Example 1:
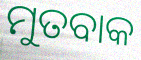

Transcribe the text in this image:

ମୁତବାକ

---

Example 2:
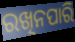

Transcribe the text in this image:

ରଖିନପାରି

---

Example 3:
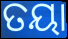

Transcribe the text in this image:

ତୟା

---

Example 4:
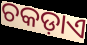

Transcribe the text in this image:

ଚକଡ଼ାଏ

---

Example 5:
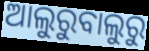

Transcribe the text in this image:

ଆଲୁରୁବାଲୁରୁ